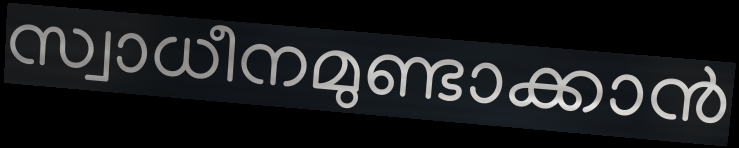
സ്വാധീനമുണ്ടാക്കാൻ